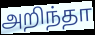
அறிந்தா